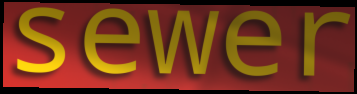
sewer